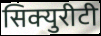
सिक्युरीटी